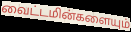
வைட்டமின்களையும்